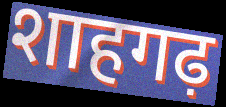
शाहगढ़